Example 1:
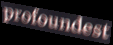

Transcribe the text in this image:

profoundest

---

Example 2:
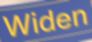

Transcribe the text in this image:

Widen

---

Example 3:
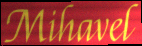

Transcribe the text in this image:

Mihavel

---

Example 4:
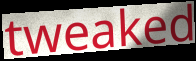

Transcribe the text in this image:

tweaked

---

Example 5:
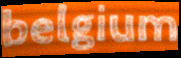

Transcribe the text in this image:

belgium